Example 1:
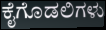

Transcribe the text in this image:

ಕೈಗೊಡಲಿಗಳು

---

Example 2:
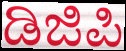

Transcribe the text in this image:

ಡಿಜಿಪಿ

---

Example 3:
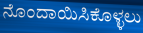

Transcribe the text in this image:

ನೊಂದಾಯಿಸಿಕೊಳ್ಳಲು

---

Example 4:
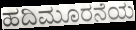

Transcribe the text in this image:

ಹದಿಮೂರನೆಯ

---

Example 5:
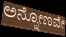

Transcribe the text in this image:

ಅನ್ನೋಣವೇ